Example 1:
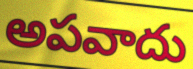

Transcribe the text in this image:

అపవాదు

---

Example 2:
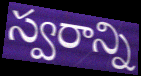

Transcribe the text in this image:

స్వరాన్ని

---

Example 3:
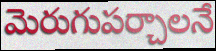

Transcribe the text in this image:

మెరుగుపర్చాలనే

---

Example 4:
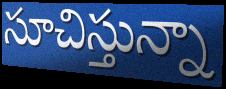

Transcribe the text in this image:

సూచిస్తున్నా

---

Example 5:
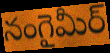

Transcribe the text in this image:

నంగైమీర్